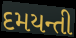
દમયન્તી